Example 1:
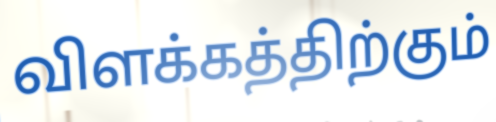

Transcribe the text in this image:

விளக்கத்திற்கும்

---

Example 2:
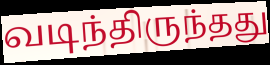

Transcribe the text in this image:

வடிந்திருந்தது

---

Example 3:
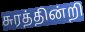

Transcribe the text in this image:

சுரத்தின்றி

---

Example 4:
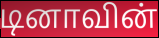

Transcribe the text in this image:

டினாவின்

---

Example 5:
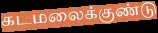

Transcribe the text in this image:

கடமலைக்குண்டு